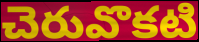
చెరువొకటి